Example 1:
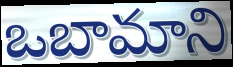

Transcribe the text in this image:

ఒబామాని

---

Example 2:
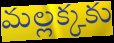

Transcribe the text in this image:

మల్లక్కకు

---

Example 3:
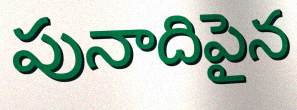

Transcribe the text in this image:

పునాదిపైన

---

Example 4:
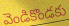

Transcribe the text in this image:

వెండికొండకు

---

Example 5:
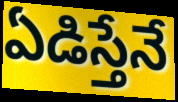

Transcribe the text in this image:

ఏడిస్తేనే